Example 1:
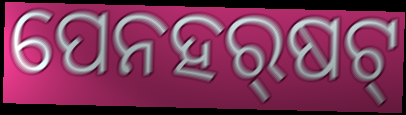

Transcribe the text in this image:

ପେନହର୍‍ଷଟ୍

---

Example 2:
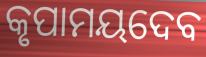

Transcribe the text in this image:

କୃପାମୟଦେବ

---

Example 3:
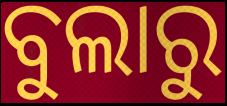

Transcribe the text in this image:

ବୁଲାରୁ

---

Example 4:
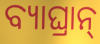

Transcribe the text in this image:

ବ୍ୟାଘ୍ରାନ୍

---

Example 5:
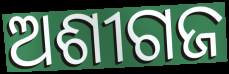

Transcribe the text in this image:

ଅଶୀଗଜ